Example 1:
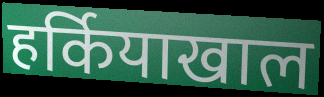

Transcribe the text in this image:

हर्कियाखाल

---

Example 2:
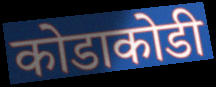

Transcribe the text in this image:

कोडाकोडी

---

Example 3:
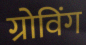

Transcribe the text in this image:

ग्रोविंग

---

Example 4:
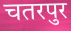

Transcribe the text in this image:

चतरपुर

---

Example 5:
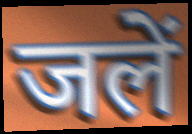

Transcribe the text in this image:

जलें